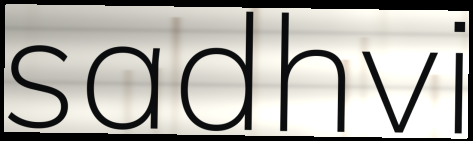
sadhvi